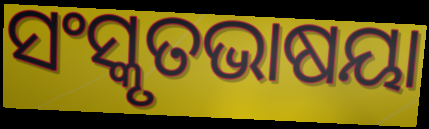
ସଂସ୍କୃତଭାଷୟା